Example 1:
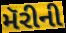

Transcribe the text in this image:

મૅરીની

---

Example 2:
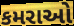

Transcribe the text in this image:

કમરાઓ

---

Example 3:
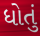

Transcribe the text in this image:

ધોતું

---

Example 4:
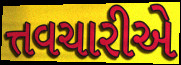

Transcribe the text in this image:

ત્તવચારીએ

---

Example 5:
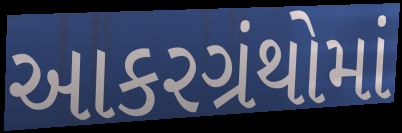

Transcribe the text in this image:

આકરગ્રંથોમાં